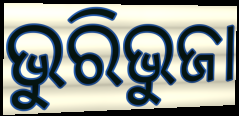
ଭୁରିଭୁଜା